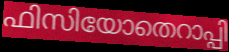
ഫിസിയോതെറാപ്പി